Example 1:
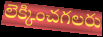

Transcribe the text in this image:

లెక్కించగలరు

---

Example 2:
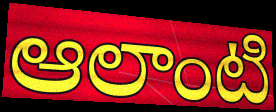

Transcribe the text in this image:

ఆలాంటి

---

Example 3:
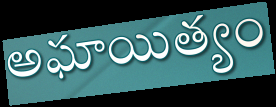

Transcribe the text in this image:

అఘాయిత్యం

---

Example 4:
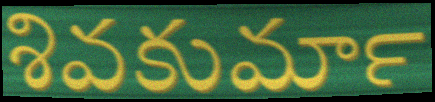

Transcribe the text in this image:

శివకుమార్‍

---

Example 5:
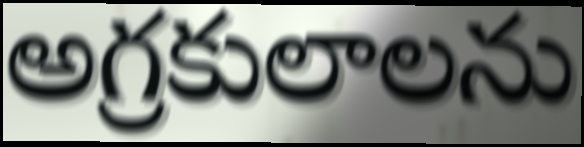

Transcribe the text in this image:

అగ్రకులాలను